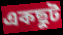
একছুট